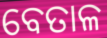
ବେତାଳ